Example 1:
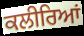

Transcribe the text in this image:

ਕਲੀਰਿਆਂ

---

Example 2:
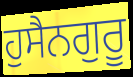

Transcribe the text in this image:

ਹੁਸੈਨਗੁਰੂ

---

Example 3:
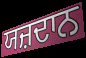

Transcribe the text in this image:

ਯਜ਼ਦਾਨ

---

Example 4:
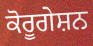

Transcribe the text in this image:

ਕੋਰੂਗੇਸ਼ਨ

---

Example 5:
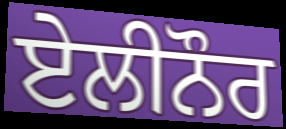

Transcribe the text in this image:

ਏਲੀਨੌਰ